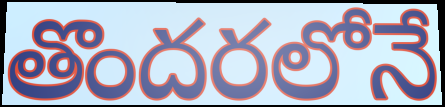
తొందరలోనే